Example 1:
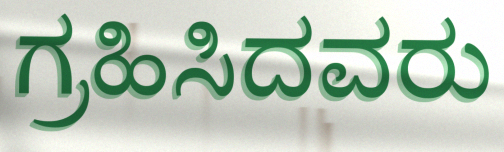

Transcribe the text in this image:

ಗ್ರಹಿಸಿದವರು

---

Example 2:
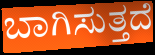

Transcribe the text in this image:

ಬಾಗಿಸುತ್ತದೆ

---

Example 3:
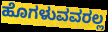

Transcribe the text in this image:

ಹೊಗಳುವವರಲ್ಲ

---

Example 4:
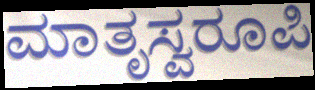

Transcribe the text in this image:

ಮಾತೃಸ್ವರೂಪಿ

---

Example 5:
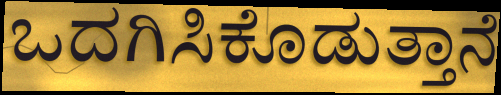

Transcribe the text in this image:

ಒದಗಿಸಿಕೊಡುತ್ತಾನೆ